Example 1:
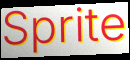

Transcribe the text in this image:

Sprite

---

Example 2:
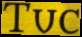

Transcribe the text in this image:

Tuc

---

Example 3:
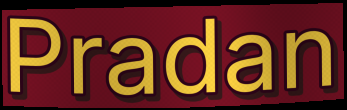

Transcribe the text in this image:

Pradan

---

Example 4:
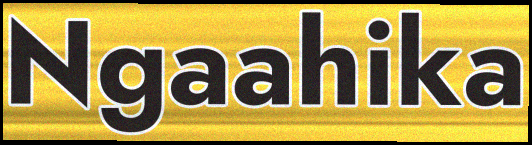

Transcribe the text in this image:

Ngaahika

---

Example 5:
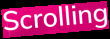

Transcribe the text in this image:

Scrolling